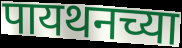
पायथनच्या